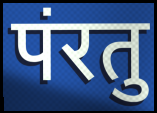
पंरतु